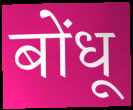
बोंधू